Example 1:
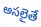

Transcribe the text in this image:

అసలైతే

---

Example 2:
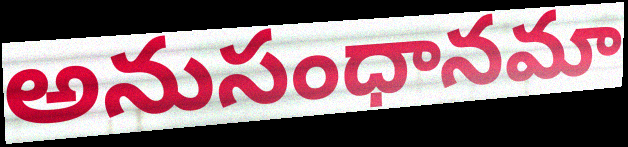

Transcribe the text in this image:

అనుసంధానమా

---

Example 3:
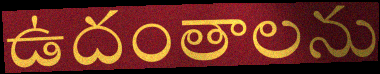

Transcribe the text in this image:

ఉదంతాలను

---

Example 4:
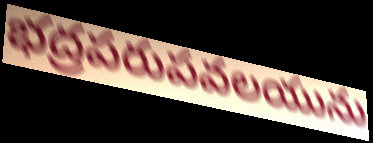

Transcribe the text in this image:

భద్రపరుపవలయును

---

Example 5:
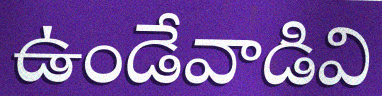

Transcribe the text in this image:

ఉండేవాడివి